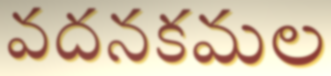
వదనకమల